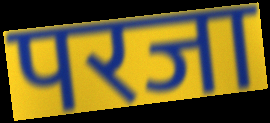
परजा